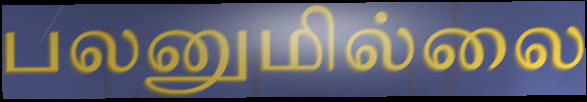
பலனுமில்லை